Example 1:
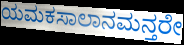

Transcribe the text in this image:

ಯಮಕಸಾಲಾನಮನ್ತರೇ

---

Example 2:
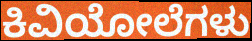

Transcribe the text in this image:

ಕಿವಿಯೋಲೆಗಳು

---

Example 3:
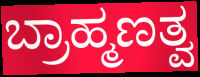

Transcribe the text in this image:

ಬ್ರಾಹ್ಮಣತ್ವ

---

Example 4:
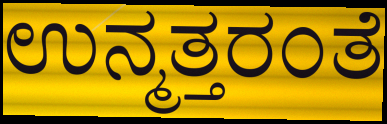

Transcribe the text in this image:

ಉನ್ಮತ್ತರಂತೆ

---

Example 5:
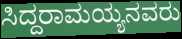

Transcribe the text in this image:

ಸಿದ್ದರಾಮಯ್ಯನವರು